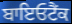
ਬਾਇਓਟੈਂਕ